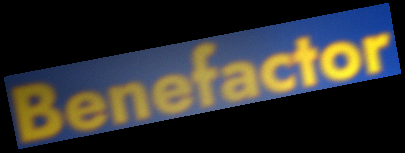
Benefactor